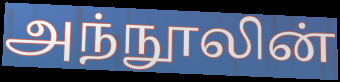
அந்நூலின்